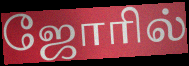
ஜோரில்